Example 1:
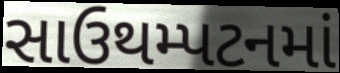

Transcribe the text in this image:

સાઉથમ્પટનમાં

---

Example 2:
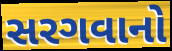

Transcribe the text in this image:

સરગવાનો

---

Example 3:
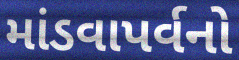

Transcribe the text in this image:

માંડવાપર્વનો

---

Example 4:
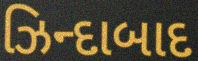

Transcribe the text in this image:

ઝિન્દાબાદ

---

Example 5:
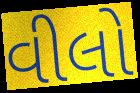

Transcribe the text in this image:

વીલો